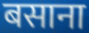
बसाना